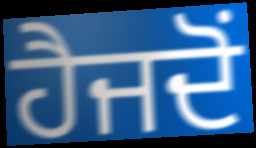
ਹੈਜਦੋਂ